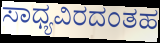
ಸಾಧ್ಯವಿರದಂತಹ